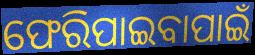
ଫେରିପାଇବାପାଇଁ